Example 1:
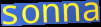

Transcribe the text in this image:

sonna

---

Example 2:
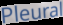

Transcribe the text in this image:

Pleural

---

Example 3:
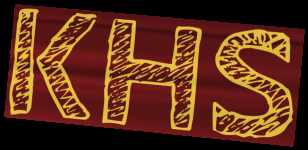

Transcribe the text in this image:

KHS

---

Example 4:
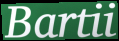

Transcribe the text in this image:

Bartii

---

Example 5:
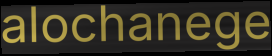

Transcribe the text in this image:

alochanege